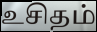
உசிதம்